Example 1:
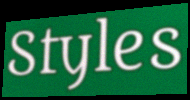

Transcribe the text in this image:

Styles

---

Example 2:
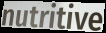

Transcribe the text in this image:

nutritive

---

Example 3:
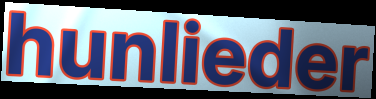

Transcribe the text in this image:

hunlieder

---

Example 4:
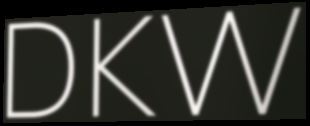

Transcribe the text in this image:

DKW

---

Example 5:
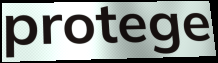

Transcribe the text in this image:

protege